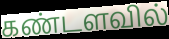
கண்டளவில்